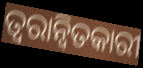
ତ୍ୱରାନ୍ୱିତକାରୀ